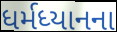
ધર્મધ્યાનના